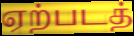
ஏற்படத்